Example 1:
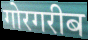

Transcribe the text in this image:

गोरगरीब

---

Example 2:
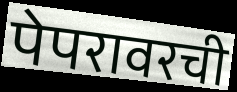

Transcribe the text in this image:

पेपरावरची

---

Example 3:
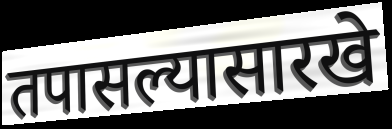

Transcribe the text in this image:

तपासल्यासारखे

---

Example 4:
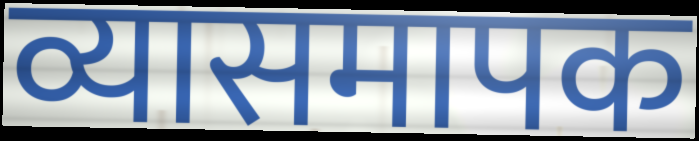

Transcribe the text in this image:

व्यासमापक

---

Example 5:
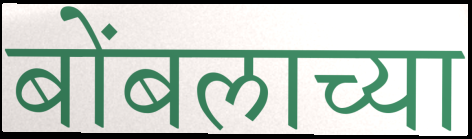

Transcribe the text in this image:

बोंबलाच्या